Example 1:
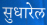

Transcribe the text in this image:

सुधारेल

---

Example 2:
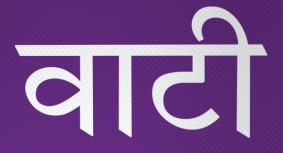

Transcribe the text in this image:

वाटी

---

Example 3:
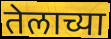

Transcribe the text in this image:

तेलाच्या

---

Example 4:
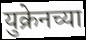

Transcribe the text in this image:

युक्रेनच्या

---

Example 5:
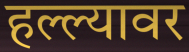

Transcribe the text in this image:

हल्ल्यावर